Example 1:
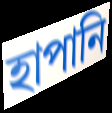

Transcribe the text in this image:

হাপানি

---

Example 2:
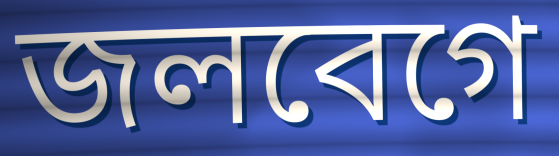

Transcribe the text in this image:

জলবেগে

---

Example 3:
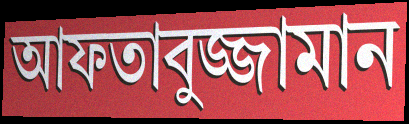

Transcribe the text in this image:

আফতাবুজ্জামান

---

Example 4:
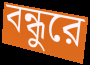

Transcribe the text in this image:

বন্ধুরে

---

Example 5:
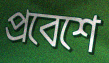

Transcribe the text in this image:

প্রবেশে